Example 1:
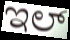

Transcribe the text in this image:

ಇಲ್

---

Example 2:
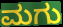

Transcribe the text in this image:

ಮಗು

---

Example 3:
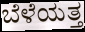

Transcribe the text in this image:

ಬೆಳೆಯತ್ತ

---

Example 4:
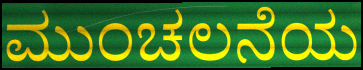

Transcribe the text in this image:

ಮುಂಚಲನೆಯ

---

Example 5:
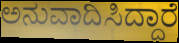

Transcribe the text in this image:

ಅನುವಾದಿಸಿದ್ದಾರೆ